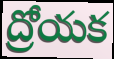
ద్రోయక